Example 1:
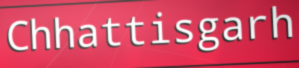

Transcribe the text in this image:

Chhattisgarh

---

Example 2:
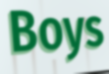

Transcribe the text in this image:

Boys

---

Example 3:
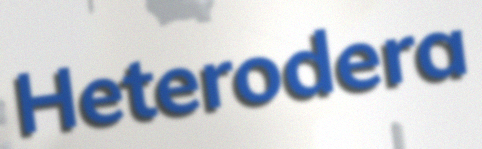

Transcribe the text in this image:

Heterodera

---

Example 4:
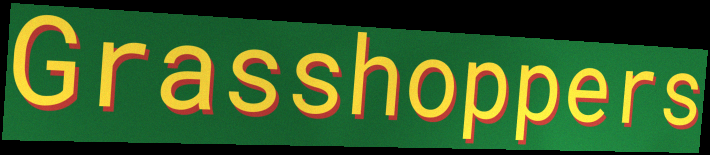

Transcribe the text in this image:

Grasshoppers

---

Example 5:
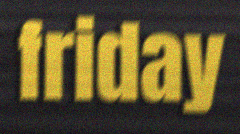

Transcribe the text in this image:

friday